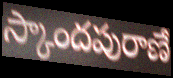
స్కాందపురాణే